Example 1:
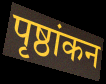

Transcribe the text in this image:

पृष्ठांकन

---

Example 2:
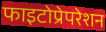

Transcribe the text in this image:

फाइटोप्रेपरेशन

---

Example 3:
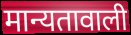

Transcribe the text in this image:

मान्यतावाली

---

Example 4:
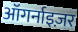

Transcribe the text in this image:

ऑगर्नाइज़र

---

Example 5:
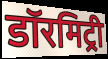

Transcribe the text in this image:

डॉरमिट्री